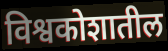
विश्वकोशातील